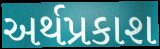
અર્થપ્રકાશ